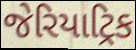
જેરિયાટ્રિક